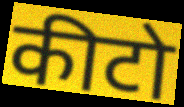
कीटो